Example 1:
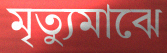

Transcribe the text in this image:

মৃত্যুমাঝে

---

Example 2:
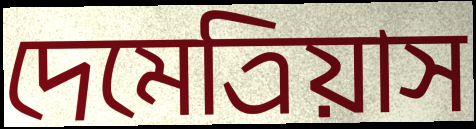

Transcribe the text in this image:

দেমেত্রিয়াস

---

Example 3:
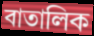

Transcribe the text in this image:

বাতালিক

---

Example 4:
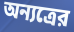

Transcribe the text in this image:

অন্যত্রের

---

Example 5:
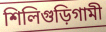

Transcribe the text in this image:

শিলিগুড়িগামী